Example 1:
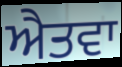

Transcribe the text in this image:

ਐਤਵਾ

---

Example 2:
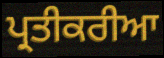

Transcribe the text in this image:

ਪ੍ਰਤੀਕਰੀਆ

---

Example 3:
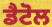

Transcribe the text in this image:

ਡੈਟੋਲ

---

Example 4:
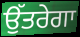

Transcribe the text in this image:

ਉੱਤਰੇਗਾ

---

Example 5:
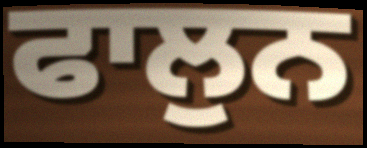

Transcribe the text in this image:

ਫਾਲੁਨ